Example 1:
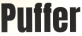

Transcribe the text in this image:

Puffer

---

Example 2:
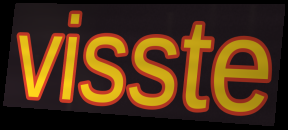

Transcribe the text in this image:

visste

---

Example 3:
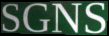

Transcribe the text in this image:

SGNS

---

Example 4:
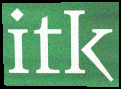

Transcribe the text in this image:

itk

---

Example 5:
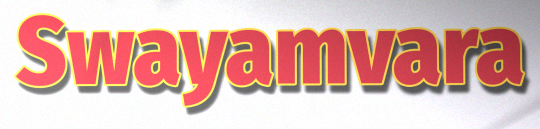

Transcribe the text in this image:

Swayamvara